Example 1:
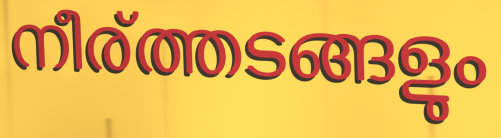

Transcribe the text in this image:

നീര്ത്തടങ്ങളും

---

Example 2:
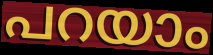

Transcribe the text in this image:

പറയാം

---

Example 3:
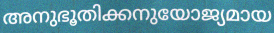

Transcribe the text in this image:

അനുഭൂതിക്കനുയോജ്യമായ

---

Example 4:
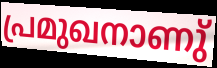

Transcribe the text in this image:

പ്രമുഖനാണു്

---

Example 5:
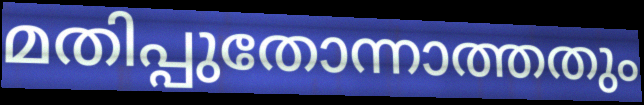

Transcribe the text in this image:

മതിപ്പുതോന്നാത്തതും